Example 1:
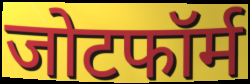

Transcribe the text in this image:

जोटफॉर्म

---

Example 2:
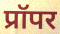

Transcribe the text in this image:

प्रॉपर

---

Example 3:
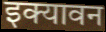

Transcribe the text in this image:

इक्‍यावन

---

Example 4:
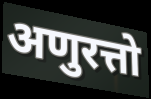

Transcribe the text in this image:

अणुरत्तो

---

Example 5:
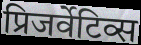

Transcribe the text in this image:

प्रिजर्वेटिव्स